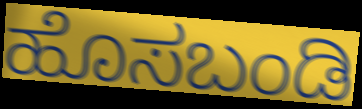
ಹೊಸಬಂಡಿ